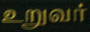
உறுவர்